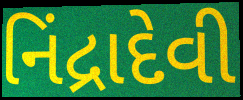
નિંદ્રાદેવી